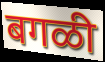
बगळी